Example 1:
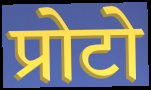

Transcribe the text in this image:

प्रोटो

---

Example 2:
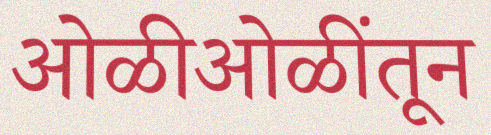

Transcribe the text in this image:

ओळीओळींतून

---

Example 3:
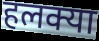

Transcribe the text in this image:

हलक्या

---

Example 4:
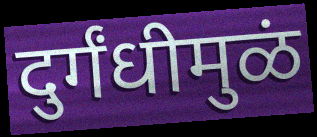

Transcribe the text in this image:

दुर्गंधीमुळं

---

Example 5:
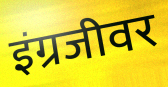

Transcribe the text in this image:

इंग्रजीवर